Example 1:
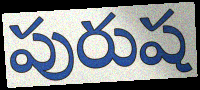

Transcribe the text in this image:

పురుష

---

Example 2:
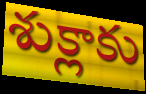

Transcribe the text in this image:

శుక్లాకు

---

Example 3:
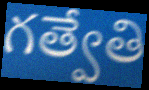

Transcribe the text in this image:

గత్వేతి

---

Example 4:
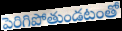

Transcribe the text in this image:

పెరిగిపోతుండటంతో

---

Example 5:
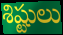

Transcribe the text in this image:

శిష్టులు